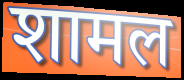
शामल